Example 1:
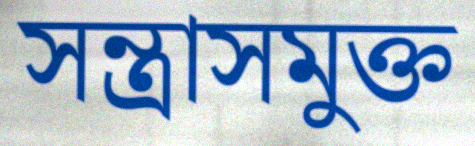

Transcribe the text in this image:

সন্ত্রাসমুক্ত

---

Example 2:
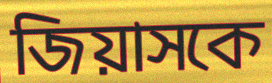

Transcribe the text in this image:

জিয়াসকে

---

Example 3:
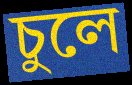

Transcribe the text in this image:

চুলে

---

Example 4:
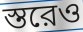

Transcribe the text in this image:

স্তরেও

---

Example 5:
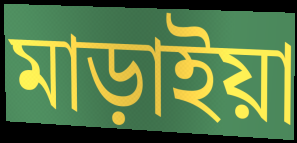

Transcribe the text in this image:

মাড়াইয়া